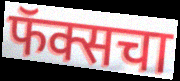
फॅक्सचा